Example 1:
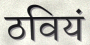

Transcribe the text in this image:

ठवियं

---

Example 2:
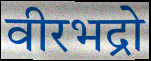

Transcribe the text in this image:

वीरभद्रो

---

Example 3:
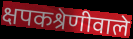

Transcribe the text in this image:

क्षपकश्रेणीवाले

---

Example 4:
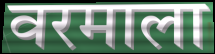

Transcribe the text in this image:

वरमाला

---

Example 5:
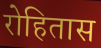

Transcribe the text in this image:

रोहितास